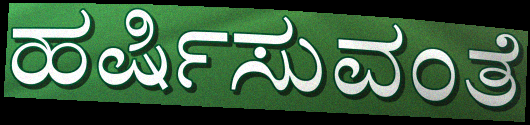
ಹರ್ಷಿಸುವಂತೆ